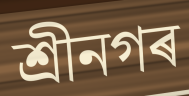
শ্ৰীনগৰ